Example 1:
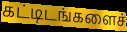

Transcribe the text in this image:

கட்டிடங்களைச்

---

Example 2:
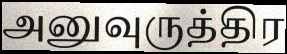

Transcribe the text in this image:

அனுவுருத்திர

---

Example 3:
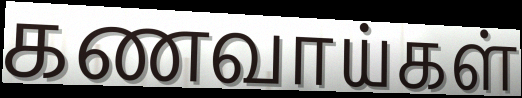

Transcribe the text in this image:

கணவாய்கள்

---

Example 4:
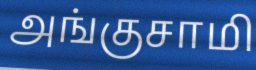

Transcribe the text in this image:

அங்குசாமி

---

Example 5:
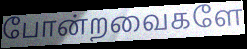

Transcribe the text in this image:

போன்றவைகளே